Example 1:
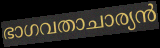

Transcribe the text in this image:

ഭാഗവതാചാര്യൻ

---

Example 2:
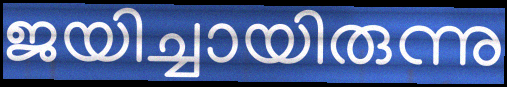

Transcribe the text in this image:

ജയിച്ചായിരുന്നു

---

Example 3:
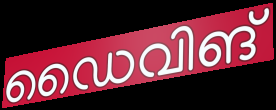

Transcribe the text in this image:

ഡൈവിങ്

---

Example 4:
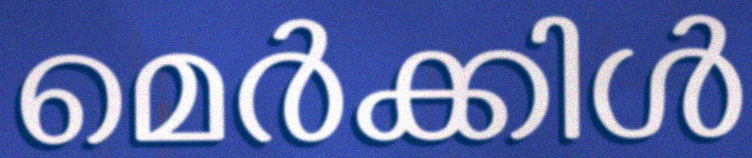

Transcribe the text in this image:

മെർക്കിൾ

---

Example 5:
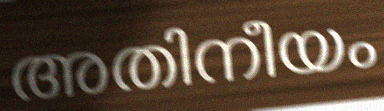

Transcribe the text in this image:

അതിനീയം